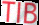
TIB